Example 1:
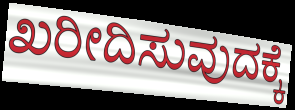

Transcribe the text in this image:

ಖರೀದಿಸುವುದಕ್ಕೆ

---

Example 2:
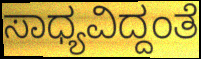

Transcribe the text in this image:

ಸಾಧ್ಯವಿದ್ದಂತೆ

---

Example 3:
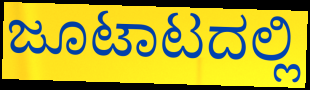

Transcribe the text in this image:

ಜೂಟಾಟದಲ್ಲಿ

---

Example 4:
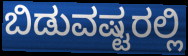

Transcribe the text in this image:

ಬಿಡುವಷ್ಟರಲ್ಲಿ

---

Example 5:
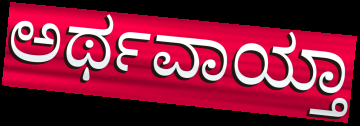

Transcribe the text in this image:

ಅರ್ಥವಾಯ್ತಾ